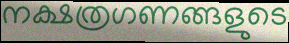
നക്ഷത്രഗണങ്ങളുടെ